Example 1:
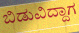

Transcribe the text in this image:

ಬಿಡುವಿದ್ದಾಗ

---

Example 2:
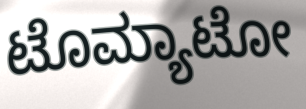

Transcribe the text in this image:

ಟೊಮ್ಯಾಟೋ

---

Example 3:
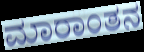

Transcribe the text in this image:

ಮಾರಾಂತನ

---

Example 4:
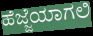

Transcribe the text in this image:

ಹೆಜ್ಜೆಯಾಗಲಿ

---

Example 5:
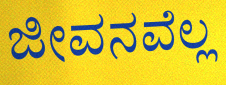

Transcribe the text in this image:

ಜೀವನವೆಲ್ಲ